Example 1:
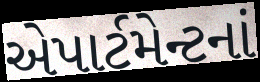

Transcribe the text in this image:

એપાર્ટમેન્ટનાં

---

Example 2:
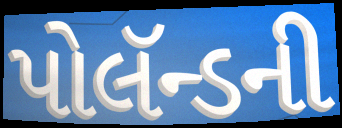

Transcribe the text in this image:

પોલૅન્ડની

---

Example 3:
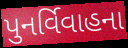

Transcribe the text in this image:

પુનર્વિવાહના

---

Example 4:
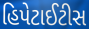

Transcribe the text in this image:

હિપેટાઈટીસ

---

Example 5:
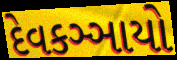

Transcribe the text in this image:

દેવકઞ્ઞાયો